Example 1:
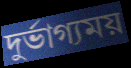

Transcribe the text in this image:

দুর্ভাগ্যময়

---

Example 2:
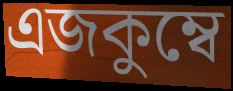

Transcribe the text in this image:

এজকুম্বে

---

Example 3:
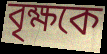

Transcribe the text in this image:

বৃক্ষকে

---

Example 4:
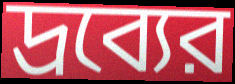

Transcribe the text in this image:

দ্রব্যের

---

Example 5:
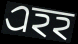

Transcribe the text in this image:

এহহ